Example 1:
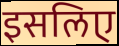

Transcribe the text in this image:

इसलिए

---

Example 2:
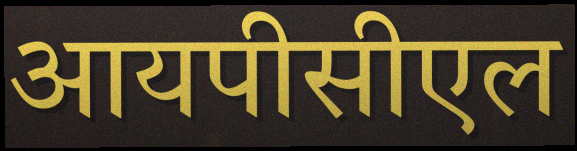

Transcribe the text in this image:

आयपीसीएल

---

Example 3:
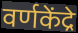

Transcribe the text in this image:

वर्णकेंद्रे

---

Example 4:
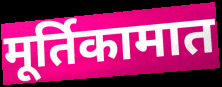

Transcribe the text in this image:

मूर्तिकामात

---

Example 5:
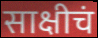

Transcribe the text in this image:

साक्षीचं